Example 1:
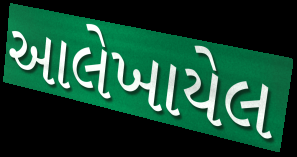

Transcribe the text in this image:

આલેખાયેલ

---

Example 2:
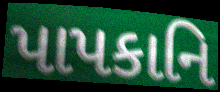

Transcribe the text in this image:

પાપકાનિ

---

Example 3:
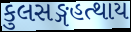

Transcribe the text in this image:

કુલસઙ્ગહત્થાય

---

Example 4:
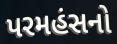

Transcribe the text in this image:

પરમહંસનો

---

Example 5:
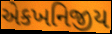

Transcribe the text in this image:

એકખનિજીય